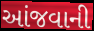
આંજવાની